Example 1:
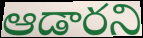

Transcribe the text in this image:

ఆడారని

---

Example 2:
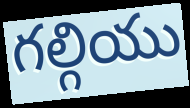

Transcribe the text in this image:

గల్గియు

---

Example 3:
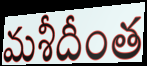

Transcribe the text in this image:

మశీదీంత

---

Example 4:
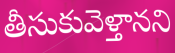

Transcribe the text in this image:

తీసుకువెళ్తానని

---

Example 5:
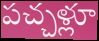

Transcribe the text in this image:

పచ్చళ్లూ